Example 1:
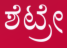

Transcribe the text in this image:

ಶೆಟ್ರೇ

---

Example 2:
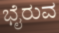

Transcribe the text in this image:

ಭೈರುವ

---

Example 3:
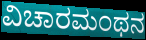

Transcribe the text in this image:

ವಿಚಾರಮಂಥನ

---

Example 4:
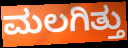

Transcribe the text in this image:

ಮಲಗಿತ್ತು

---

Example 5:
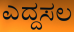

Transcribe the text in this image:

ಎದ್ದಸಲ